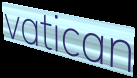
vatican